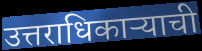
उत्तराधिकाऱ्याची